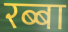
रब्बा